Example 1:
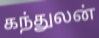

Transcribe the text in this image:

கந்துலன்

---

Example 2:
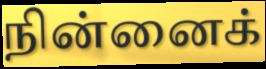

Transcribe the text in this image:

நின்னைக்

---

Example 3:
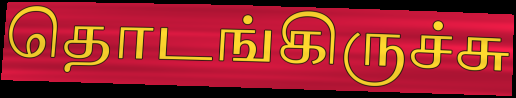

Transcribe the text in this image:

தொடங்கிருச்சு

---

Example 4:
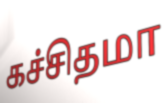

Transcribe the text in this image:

கச்சிதமா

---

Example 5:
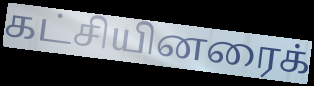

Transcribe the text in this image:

கட்சியினரைக்